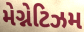
મેગ્નેટિઝમ